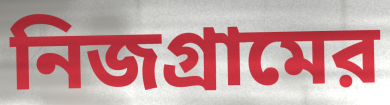
নিজগ্রামের